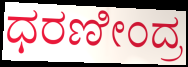
ಧರಣೀಂದ್ರ